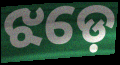
ଝଡ଼େ